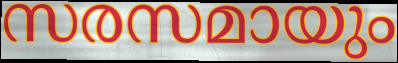
സരസമായും